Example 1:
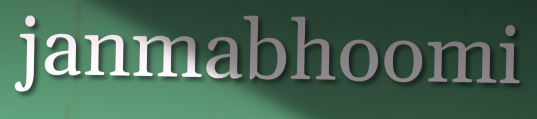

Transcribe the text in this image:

janmabhoomi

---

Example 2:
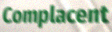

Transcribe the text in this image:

Complacent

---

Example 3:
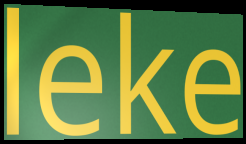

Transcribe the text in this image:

leke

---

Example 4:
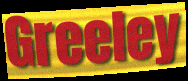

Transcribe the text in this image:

Greeley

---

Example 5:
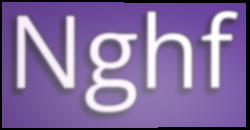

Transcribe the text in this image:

Nghf